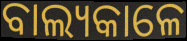
ବାଲ୍ୟକାଳେ